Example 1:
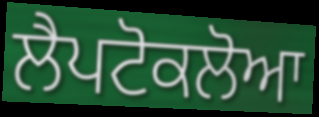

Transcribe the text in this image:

ਲੈਪਟੋਕਲੋਆ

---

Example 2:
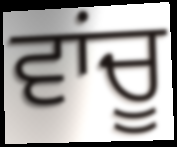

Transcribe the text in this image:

ਵਾਂਚੂ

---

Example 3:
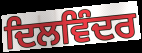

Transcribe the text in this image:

ਦਿਲਵਿੰਦਰ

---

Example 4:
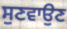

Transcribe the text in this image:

ਸੁਣਵਾਉਣ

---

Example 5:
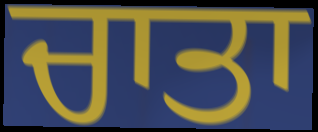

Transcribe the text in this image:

ਚਾਤਾ